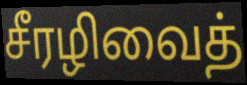
சீரழிவைத்